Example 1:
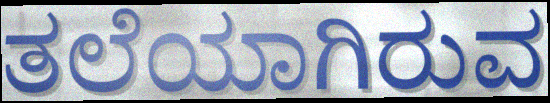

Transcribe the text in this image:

ತಲೆಯಾಗಿರುವ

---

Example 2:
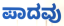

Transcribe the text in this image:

ಪಾದವು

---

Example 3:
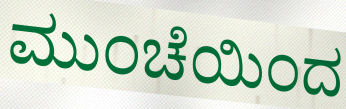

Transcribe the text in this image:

ಮುಂಚೆಯಿಂದ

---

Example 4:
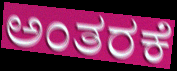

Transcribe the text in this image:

ಅಂತರಕೆ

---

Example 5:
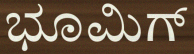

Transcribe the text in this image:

ಭೂಮಿಗ್